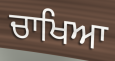
ਚਾਖਿਆ